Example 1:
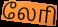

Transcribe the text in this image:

லேரி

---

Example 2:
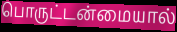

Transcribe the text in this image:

பொருட்டன்மையால்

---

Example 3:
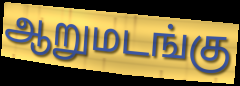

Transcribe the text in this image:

ஆறுமடங்கு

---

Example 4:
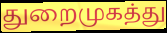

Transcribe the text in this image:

துறைமுகத்து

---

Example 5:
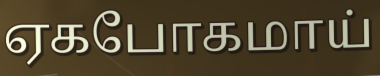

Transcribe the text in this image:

ஏகபோகமாய்